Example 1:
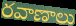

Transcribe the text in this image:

రవాణాలు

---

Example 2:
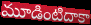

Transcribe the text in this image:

మూడింటిదాకా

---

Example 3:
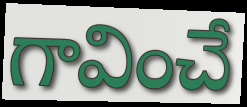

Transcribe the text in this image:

గావించే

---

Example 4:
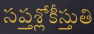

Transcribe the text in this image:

సప్తశ్లోకీస్తుతి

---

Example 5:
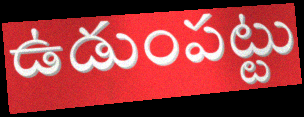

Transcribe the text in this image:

ఉడుంపట్టు